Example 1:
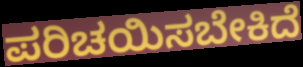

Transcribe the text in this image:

ಪರಿಚಯಿಸಬೇಕಿದೆ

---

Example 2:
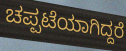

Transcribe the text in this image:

ಚಪ್ಪಟೆಯಾಗಿದ್ದರೆ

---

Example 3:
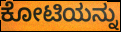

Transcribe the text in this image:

ಕೋಟಿಯನ್ನು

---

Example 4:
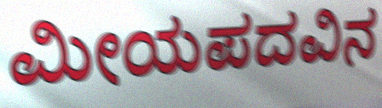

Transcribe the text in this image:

ಮೀಯಪದವಿನ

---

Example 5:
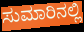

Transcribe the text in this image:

ಸುಮಾರಿನಲ್ಲಿ